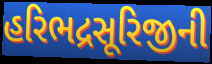
હરિભદ્રસૂરિજીની